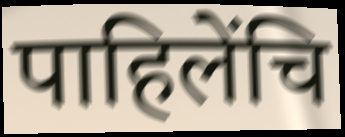
पाहिलेंचि